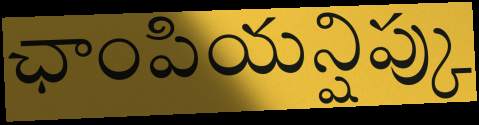
ఛాంపియన్షిప్కు